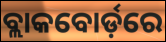
ବ୍ଲାକବୋର୍ଡ଼ରେ